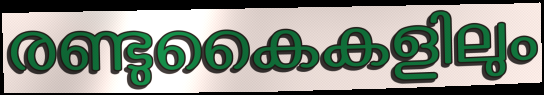
രണ്ടുകൈകളിലും